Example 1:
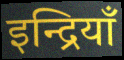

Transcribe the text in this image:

इन्द्रियाँ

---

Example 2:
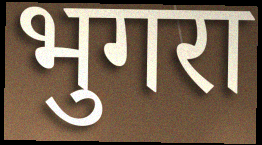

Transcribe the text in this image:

भुगरा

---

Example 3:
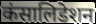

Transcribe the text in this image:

कंसालिडेशन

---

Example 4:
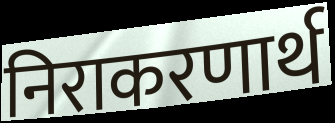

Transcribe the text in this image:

निराकरणार्थ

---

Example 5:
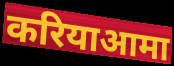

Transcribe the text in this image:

करियाआमा